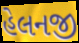
હેલનજી